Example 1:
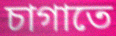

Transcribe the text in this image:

চাগাতে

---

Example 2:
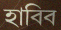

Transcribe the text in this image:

হাবিব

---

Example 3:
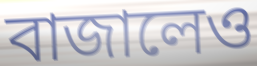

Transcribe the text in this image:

বাজালেও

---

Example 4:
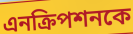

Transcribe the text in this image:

এনক্রিপশনকে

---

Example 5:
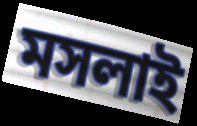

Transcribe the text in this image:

মসলাই